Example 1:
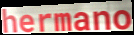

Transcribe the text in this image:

hermano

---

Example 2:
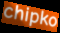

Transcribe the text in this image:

chipko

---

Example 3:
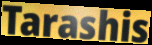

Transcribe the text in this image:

Tarashis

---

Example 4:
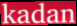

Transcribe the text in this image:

kadan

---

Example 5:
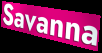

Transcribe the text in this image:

Savanna